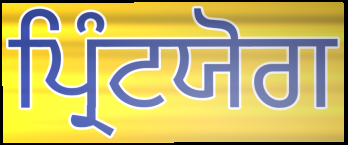
ਪ੍ਰਿੰਟਯੋਗ